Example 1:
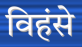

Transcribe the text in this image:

विहंसे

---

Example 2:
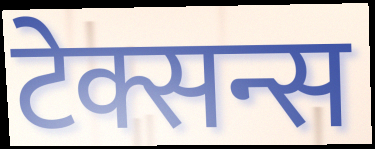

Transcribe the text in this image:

टेक्सन्स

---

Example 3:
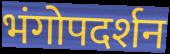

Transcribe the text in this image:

भंगोपदर्शन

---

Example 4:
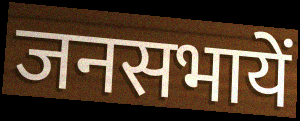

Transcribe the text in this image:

जनसभायें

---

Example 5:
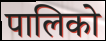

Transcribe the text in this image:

पालिको